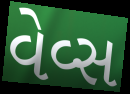
વેવ્સ